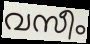
വസീം